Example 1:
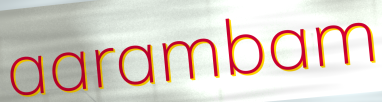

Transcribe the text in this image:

aarambam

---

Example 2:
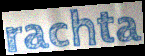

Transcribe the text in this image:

rachta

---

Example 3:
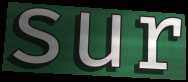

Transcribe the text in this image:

sur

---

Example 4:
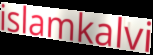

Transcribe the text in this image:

islamkalvi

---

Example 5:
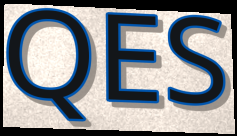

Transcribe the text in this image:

QES